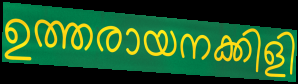
ഉത്തരായനക്കിളി